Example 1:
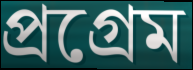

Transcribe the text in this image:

প্ৰগ্ৰেম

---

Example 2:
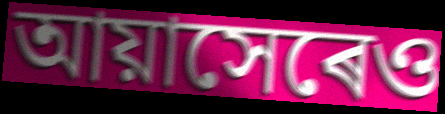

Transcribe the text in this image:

আয়াসেৰেও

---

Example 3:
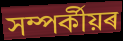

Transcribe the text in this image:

সম্পৰ্কীয়ৰ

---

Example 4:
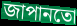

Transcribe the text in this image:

জাপানতো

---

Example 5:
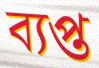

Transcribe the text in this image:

ব্যপ্ত